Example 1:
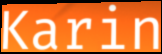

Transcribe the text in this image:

Karin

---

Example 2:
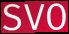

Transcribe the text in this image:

SVO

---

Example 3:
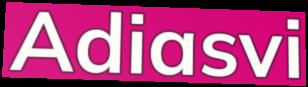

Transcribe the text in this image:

Adiasvi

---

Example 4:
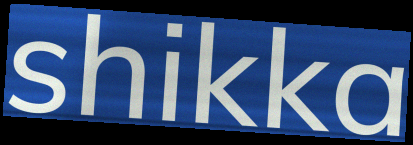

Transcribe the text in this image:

shikka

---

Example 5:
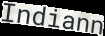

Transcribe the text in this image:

Indiann